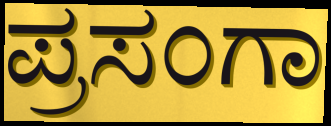
ಪ್ರಸಂಗಾ